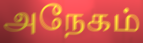
அநேகம்